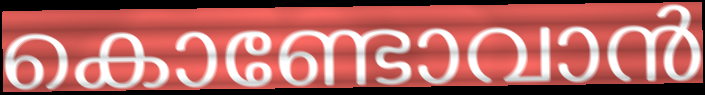
കൊണ്ടോവാൻ